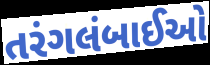
તરંગલંબાઈઓ